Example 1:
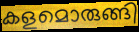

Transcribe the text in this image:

കളമൊരുങ്ങി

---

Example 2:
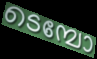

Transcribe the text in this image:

ടെമ്പോ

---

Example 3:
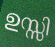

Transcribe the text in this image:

ഉസ്സി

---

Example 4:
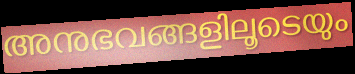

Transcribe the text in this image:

അനുഭവങ്ങളിലൂടെയും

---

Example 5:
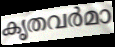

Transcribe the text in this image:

കൃതവർമാ